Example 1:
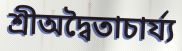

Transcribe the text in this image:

শ্রীঅদ্বৈতাচার্য্য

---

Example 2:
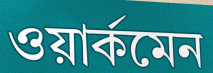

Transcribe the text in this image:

ওয়ার্কমেন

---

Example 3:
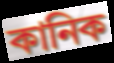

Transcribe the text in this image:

কানিক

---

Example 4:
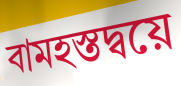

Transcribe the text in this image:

বামহস্তদ্বয়ে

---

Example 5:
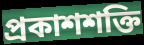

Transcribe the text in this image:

প্রকাশশক্তি